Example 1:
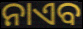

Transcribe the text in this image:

ନାଏବ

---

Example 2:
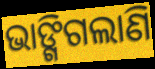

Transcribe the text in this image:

ଭାଙ୍ଗିଗଲାଣି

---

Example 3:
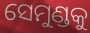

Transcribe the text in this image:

ସେମୁଣ୍ଡକୁ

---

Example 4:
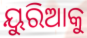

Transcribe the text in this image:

ୟୁରିଆକୁ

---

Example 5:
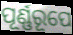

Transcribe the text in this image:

ପୂର୍ଣ୍ଣରୂପେ